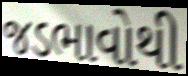
જડભાવોથી